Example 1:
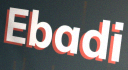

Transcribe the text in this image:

Ebadi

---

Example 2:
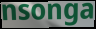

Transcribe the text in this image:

nsonga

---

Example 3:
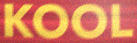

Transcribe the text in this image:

KOOL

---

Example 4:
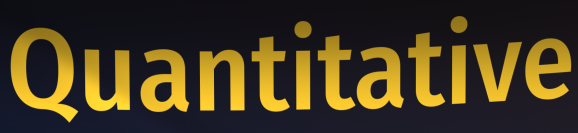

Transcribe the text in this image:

Quantitative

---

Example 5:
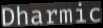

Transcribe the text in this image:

Dharmic